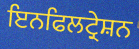
ਇਨਫਿਲਟ੍ਰੇਸ਼ਨ